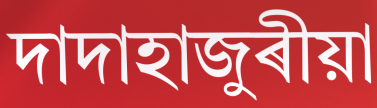
দাদাহাজুৰীয়া